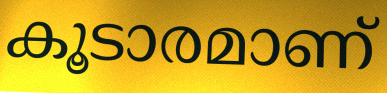
കൂടാരമാണ്